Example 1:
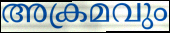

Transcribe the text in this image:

അക്രമവും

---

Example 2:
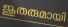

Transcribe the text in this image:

ജൂതരുമായി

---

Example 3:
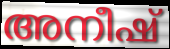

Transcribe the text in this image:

അനീഷ്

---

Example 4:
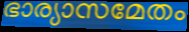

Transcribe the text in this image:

ഭാര്യാസമേതം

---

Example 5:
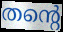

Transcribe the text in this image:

തന്റെ